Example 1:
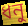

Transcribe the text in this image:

ধনু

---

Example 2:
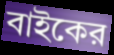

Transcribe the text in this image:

বাইকের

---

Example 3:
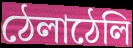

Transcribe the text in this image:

ঠেলাঠেলি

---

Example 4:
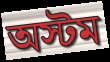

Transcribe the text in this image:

অস্টম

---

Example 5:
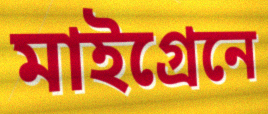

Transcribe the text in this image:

মাইগ্রেনে